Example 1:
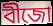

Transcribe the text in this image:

বীজো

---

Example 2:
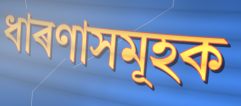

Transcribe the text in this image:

ধাৰণাসমূহক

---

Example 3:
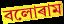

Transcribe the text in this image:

বলোৰাম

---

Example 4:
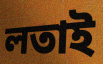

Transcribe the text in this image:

লতাই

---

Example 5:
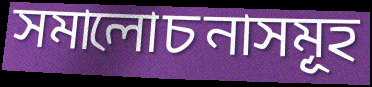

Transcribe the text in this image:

সমালোচনাসমূহ